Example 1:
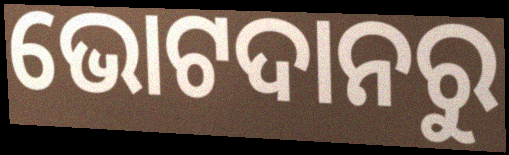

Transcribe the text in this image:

ଭୋଟଦାନରୁ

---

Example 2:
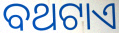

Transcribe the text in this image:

ବଥଟାଏ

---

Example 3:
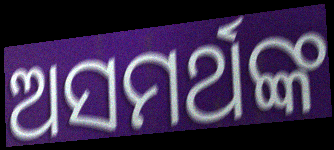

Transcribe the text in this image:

ଅସମର୍ଥଙ୍କ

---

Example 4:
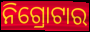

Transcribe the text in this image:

ନିଗ୍ରୋଟାର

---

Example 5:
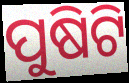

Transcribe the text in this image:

ପୁଷିଟି